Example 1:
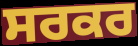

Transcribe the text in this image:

ਸਰਕਰ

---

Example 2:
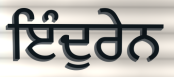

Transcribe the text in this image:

ਇੰਦੁਰੇਨ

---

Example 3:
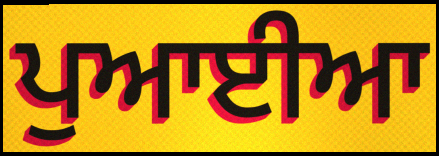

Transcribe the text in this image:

ਪੁਆਈਆ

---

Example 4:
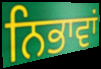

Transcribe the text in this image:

ਨਿਭਾਵਾਂ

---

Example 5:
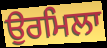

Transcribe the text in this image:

ਉਰਮਿਲਾ